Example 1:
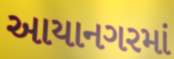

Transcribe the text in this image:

આયાનગરમાં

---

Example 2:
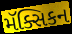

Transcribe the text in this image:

મૅક્સિકન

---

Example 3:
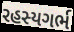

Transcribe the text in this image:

રહસ્યગર્ભ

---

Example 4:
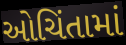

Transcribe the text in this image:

ઓચિંતામાં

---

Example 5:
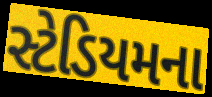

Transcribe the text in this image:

સ્ટેડિયમના